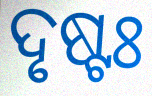
ଦୃଷ୍ଟଃ